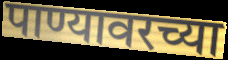
पाण्यावरच्या